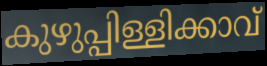
കുഴുപ്പിള്ളിക്കാവ്